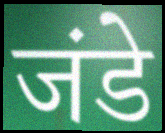
जंडे